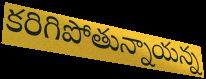
కరిగిపోతున్నాయన్న